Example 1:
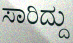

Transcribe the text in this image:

ಸಾರಿದ್ದು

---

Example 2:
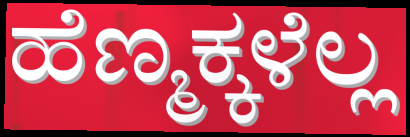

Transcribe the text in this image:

ಹೆಣ್ಮಕ್ಕಳೆಲ್ಲ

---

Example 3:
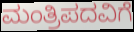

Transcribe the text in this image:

ಮಂತ್ರಿಪದವಿಗೆ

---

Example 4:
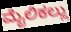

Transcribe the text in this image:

ಮೈಲಿಕಲ್ಲು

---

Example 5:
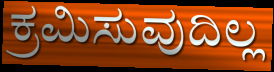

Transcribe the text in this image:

ಕ್ರಮಿಸುವುದಿಲ್ಲ